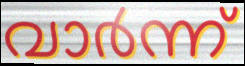
വാർന്ന്